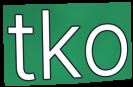
tko